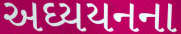
અઘ્યયનના